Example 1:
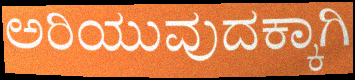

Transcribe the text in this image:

ಅರಿಯುವುದಕ್ಕಾಗಿ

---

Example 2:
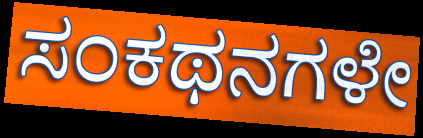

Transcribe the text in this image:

ಸಂಕಥನಗಳೇ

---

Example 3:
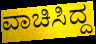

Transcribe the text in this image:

ವಾಚಿಸಿದ್ದ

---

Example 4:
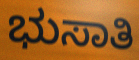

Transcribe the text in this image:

ಭುಸಾತಿ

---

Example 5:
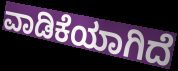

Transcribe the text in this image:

ವಾಡಿಕೆಯಾಗಿದೆ